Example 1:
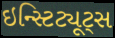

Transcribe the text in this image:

ઇન્સ્ટિટ્યૂટ્સ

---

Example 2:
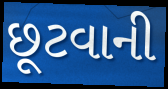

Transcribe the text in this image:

છૂટવાની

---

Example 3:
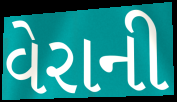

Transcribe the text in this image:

વેરાની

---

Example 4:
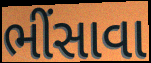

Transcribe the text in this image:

ભીંસાવા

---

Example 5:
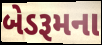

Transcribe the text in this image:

બેડરૂમના